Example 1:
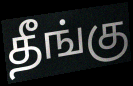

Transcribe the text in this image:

தீங்கு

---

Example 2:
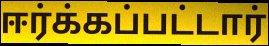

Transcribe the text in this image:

ஈர்க்கப்பட்டார்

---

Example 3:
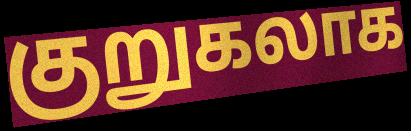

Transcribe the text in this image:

குறுகலாக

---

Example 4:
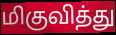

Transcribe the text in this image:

மிகுவித்து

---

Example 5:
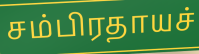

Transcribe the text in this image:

சம்பிரதாயச்